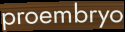
proembryo